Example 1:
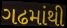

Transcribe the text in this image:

ગઢમાંથી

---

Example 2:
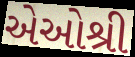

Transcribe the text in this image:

એઓશ્રી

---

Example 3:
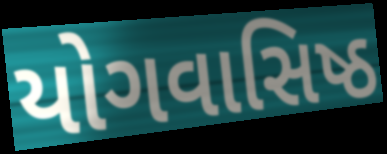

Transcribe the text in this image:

યોગવાસિષ્ઠ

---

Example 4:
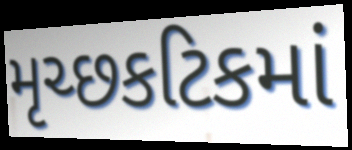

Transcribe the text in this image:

મૃચ્છકટિકમાં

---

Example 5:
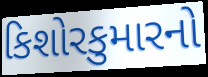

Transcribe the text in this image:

કિશોરકુમારનો